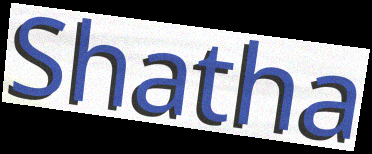
Shatha